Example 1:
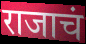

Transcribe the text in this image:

राजाचं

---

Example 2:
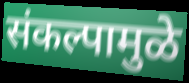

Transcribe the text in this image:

संकल्पामुळे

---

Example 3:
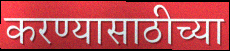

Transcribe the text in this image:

करण्यासाठीच्या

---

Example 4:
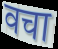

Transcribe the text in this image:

वचा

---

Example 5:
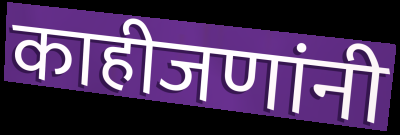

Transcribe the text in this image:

काहीजणांनी